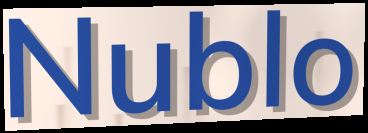
Nublo